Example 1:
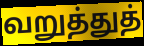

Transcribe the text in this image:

வறுத்துத்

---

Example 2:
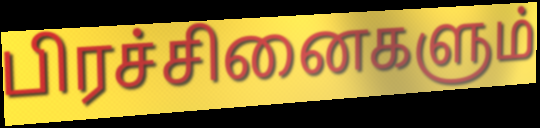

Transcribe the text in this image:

பிரச்சினைகளும்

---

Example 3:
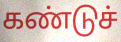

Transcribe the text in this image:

கண்டுச்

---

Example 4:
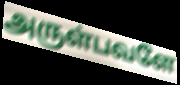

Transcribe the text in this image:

அருள்பவளே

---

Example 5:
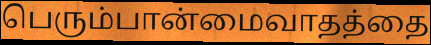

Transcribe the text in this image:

பெரும்பான்மைவாதத்தை